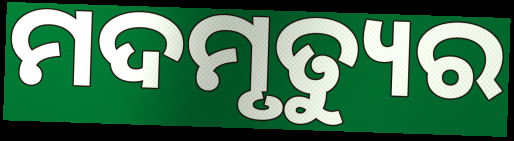
ମଦମୃତ୍ୟୁର